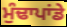
ਮੁੰਢਾਪਾਂਡੇ